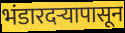
भंडारदऱ्यापासून